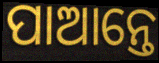
ପାଆନ୍ତେ